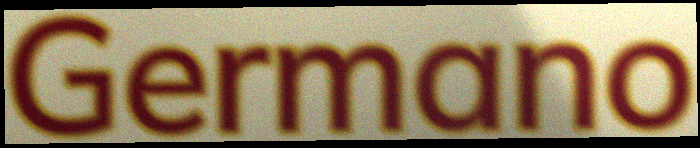
Germano